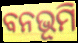
ବନଭୂମି